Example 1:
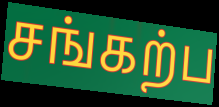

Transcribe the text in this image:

சங்கற்ப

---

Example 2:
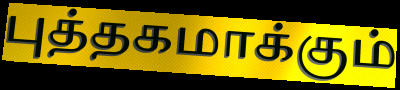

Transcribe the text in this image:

புத்தகமாக்கும்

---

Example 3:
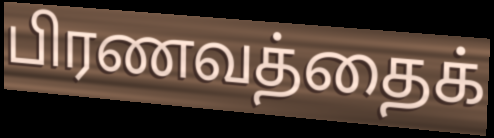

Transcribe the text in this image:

பிரணவத்தைக்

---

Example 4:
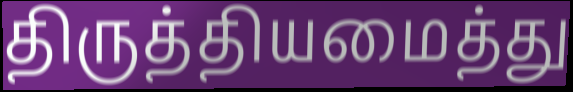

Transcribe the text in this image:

திருத்தியமைத்து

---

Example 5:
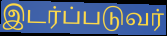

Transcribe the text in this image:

இடர்ப்படுவர்